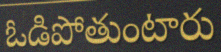
ఓడిపోతుంటారు